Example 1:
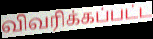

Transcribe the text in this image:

விவரிக்கப்பட்ட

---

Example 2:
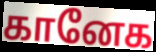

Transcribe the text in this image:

கானேக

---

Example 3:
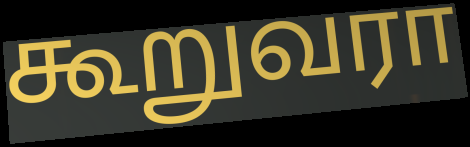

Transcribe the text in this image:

கூறுவரா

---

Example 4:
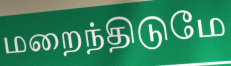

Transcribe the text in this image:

மறைந்திடுமே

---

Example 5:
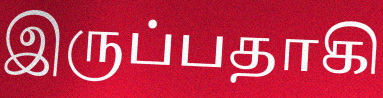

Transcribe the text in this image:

இருப்பதாகி